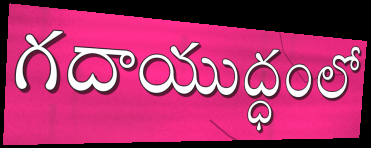
గదాయుద్ధంలో